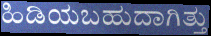
ಹಿಡಿಯಬಹುದಾಗಿತ್ತು